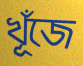
খূঁজে